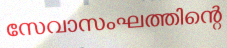
സേവാസംഘത്തിന്റെ